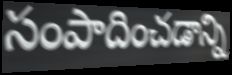
సంపాదించడాన్ని